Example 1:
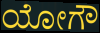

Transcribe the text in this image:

ಯೋಗೌ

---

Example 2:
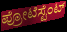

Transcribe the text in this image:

ಪ್ರೋಟೆಸ್ಟೆಂಟ್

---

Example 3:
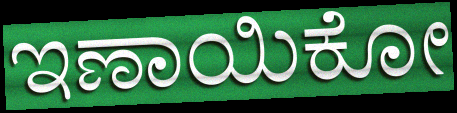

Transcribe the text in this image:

ಇಣಾಯಿಕೋ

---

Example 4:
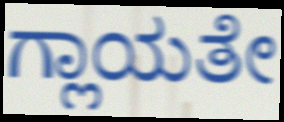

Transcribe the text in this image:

ಗ್ಲಾಯತೇ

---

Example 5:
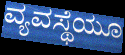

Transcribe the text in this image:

ವ್ಯವಸ್ಥೆಯೂ